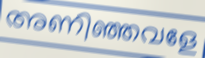
അണിഞ്ഞവളേ